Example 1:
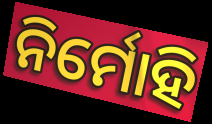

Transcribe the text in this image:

ନିର୍ମୋହି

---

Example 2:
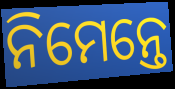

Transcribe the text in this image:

ନିମେନ୍ତେ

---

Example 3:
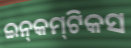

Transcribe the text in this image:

ଇନ୍‍କମ୍‍ଟିକସ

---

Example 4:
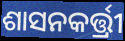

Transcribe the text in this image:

ଶାସନକର୍ତ୍ତ୍ରୀ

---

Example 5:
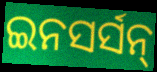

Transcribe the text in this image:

ଇନସର୍ସନ୍